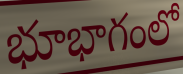
భూభాగంలో